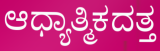
ಆಧ್ಯಾತ್ಮಿಕದತ್ತ